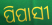
ପିପାସୀ